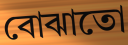
বোঝাতো